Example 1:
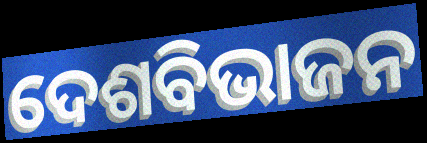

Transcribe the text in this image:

ଦେଶବିଭାଜନ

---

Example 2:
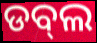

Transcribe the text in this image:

ଡବ୍‌ଲ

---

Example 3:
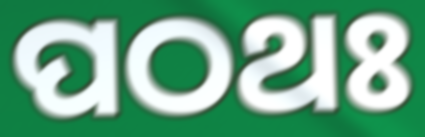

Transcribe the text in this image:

ପଠଥଃ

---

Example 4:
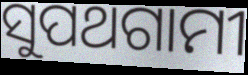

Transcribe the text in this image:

ସୁପଥଗାମୀ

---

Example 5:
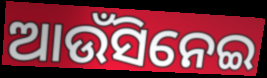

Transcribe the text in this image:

ଆଉଁସିନେଇ